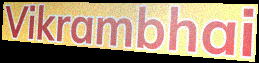
Vikrambhai